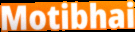
Motibhai